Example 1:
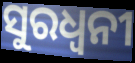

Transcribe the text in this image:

ସୁରଧ୍ୱନୀ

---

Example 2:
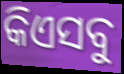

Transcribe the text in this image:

କିଏସବୁ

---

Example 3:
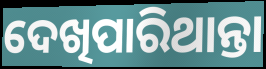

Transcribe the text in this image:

ଦେଖିପାରିଥାନ୍ତା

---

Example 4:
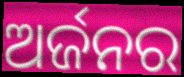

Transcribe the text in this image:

ଅର୍ଜନର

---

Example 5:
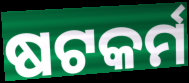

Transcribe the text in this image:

ଷଟକର୍ମ